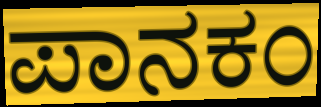
ಪಾನಕಂ